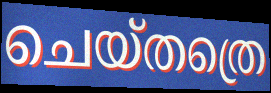
ചെയ്തത്രെ